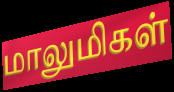
மாலுமிகள்